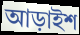
আড়াইশ